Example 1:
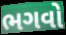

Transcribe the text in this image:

ભગવો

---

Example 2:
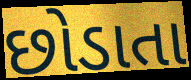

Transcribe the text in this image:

છોડાતા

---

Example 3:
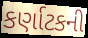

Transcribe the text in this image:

કર્ણાટકની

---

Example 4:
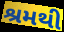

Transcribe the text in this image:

શ્રમથી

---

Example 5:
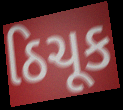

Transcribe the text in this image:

ઠિચૂક